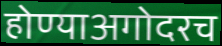
होण्याअगोदरच